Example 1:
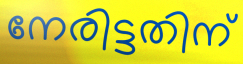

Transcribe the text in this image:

നേരിട്ടതിന്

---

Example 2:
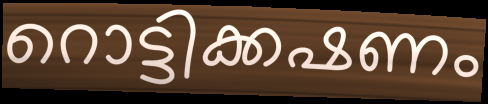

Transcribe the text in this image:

റൊട്ടിക്കഷണം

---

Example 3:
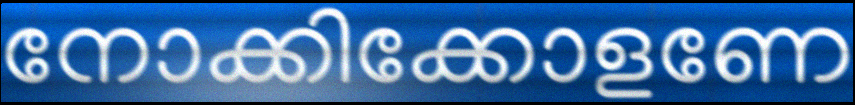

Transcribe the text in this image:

നോക്കിക്കോളണേ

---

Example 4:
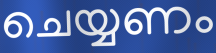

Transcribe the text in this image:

ചെയ്യണം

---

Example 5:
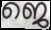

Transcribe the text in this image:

ജെ